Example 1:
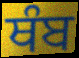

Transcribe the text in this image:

ਥੰਬ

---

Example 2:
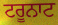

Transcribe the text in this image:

ਟਰੂਨਾਟ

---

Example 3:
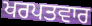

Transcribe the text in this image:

ਖਰਪਤਵਾਰ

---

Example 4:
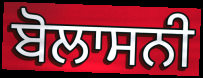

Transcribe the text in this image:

ਬੋਲਾਸਨੀ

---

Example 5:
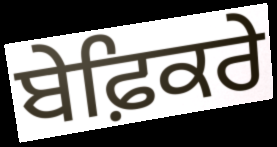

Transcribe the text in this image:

ਬੇਫ਼ਿਕਰੇ